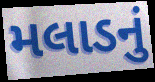
મલાડનું